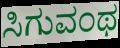
ಸಿಗುವಂಥ